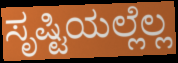
ಸೃಷ್ಟಿಯಲ್ಲೆಲ್ಲ